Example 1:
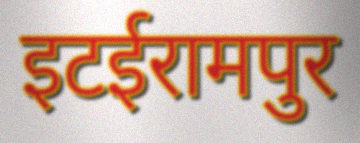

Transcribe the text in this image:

इटईरामपुर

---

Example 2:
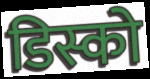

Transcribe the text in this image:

डिस्को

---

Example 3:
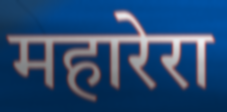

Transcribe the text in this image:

महारेरा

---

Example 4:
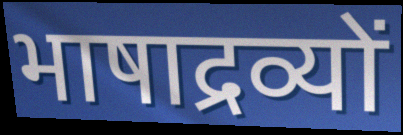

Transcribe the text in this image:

भाषाद्रव्यों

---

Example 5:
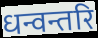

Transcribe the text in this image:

धन्वन्तरि